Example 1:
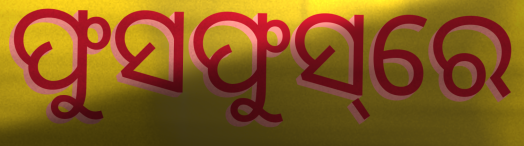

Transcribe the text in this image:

ଫୁସଫୁସ୍‌ରେ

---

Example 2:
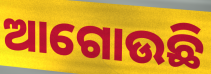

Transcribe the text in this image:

ଆଗୋଉଛି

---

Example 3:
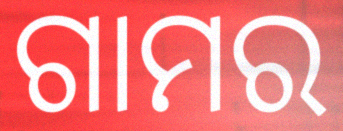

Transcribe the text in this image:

ଗାମର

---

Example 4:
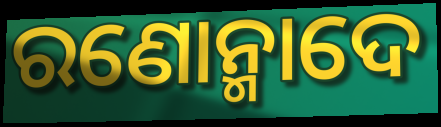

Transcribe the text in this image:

ରଣୋନ୍ମାଦେ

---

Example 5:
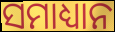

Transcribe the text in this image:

ସମାଧ୍ୟାନ